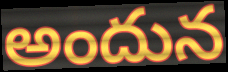
అందున